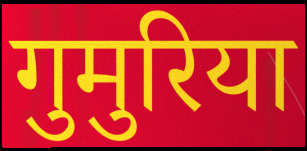
गुमुरिया